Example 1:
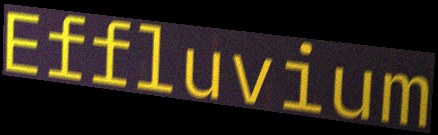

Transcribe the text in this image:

Effluvium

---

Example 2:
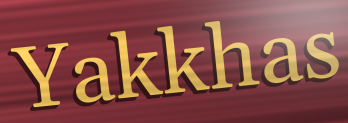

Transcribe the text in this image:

Yakkhas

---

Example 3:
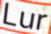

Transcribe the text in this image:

Lur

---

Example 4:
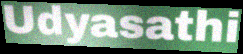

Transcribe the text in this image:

Udyasathi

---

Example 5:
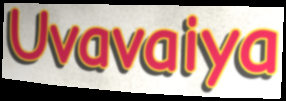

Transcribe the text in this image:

Uvavaiya